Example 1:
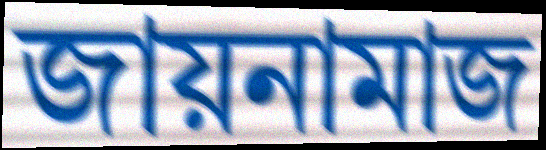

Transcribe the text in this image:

জায়নামাজ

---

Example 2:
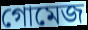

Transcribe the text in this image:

গোমেজ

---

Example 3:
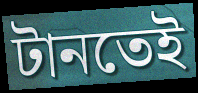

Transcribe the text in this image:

টানতেই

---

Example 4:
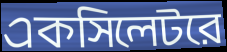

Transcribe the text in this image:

একসিলেটরে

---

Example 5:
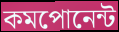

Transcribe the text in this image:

কমপোনেন্ট